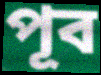
পূব